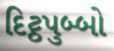
દિટ્ઠપુબ્બો